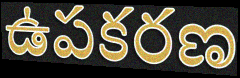
ఉపకరణ